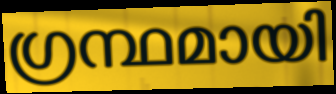
ഗ്രന്ഥമായി